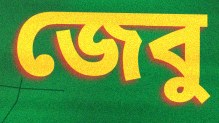
জেবু